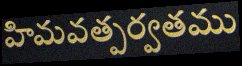
హిమవత్పర్వతము